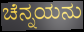
ಚೆನ್ನಯನು